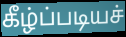
கீழ்ப்படியச்